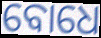
ବୋଧେ